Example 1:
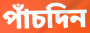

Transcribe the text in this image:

পাঁচদিন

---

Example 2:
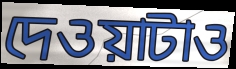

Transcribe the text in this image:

দেওয়াটাও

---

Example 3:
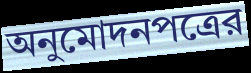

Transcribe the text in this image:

অনুমোদনপত্রের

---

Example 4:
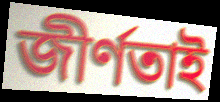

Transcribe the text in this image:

জীর্ণতাই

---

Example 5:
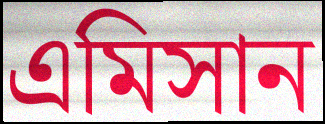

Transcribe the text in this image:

এমিসান